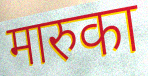
मारुका